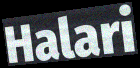
Halari